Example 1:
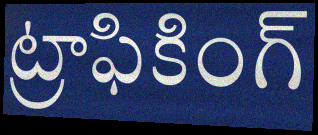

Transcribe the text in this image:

ట్రాఫికింగ్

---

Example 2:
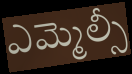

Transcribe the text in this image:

ఎమ్మెల్సీ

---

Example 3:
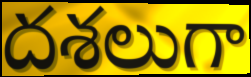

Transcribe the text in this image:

దశలుగా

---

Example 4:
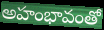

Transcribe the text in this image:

అహంభావంతో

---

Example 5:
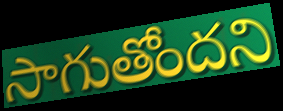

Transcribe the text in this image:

సాగుతోందని